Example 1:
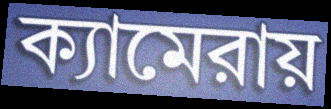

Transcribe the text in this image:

ক্যামেরায়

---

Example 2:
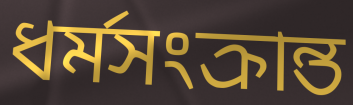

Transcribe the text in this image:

ধর্মসংক্রান্ত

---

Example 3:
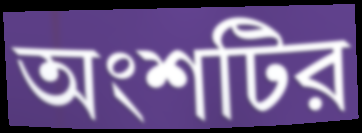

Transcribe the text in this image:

অংশটির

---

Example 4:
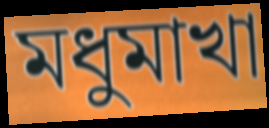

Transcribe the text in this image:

মধুমাখা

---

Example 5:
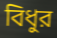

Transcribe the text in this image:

বিধুর